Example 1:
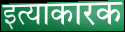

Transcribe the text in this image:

इत्याकारक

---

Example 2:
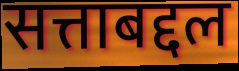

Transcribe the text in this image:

सत्ताबद्दल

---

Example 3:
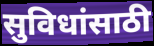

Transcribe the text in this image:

सुविधांसाठी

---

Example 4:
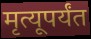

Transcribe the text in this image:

मृत्यूपर्यंत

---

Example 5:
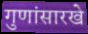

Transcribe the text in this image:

गुणांसारखे